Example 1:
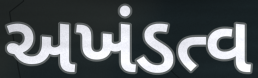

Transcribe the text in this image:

અખંડત્વ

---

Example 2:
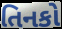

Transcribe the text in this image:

તિનકો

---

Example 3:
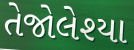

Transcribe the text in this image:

તેજોલેશ્યા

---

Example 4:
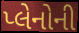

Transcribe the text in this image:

પ્લેનોની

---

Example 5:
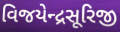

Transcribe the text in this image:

વિજયેન્દ્રસૂરિજી